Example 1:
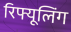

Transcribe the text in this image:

रिफ्यूलिंग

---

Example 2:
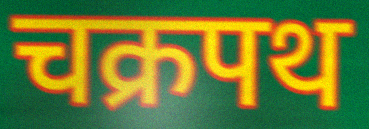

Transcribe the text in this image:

चक्रपथ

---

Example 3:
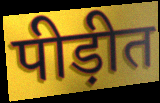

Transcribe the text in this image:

पीड़ीत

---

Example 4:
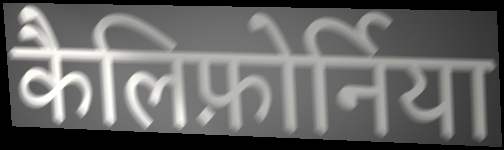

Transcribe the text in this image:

कैलिफ़ोर्निया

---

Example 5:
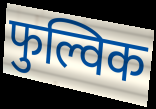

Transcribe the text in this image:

फुल्विक